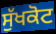
ਸੁੱਖਕੋਟ